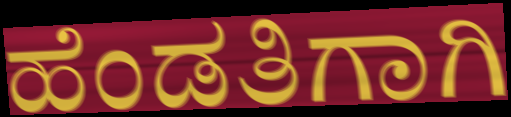
ಹೆಂಡತಿಗಾಗಿ